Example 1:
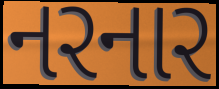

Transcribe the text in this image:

નરનાર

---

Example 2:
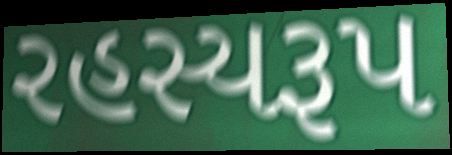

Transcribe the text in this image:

રહસ્યરૂપ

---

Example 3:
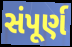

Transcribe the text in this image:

સંપૂર્ણ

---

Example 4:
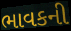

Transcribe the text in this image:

ભાવકની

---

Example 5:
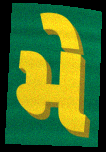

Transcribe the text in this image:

મે